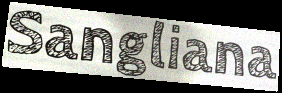
Sangliana